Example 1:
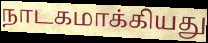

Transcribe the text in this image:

நாடகமாக்கியது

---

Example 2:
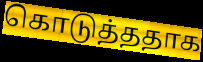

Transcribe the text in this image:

கொடுத்ததாக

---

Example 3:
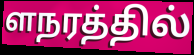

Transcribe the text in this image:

ளநரத்தில்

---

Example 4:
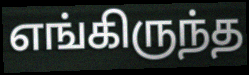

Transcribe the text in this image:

எங்கிருந்த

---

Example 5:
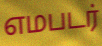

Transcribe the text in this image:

எமபடர்